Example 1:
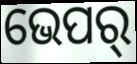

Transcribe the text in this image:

ଭେପର୍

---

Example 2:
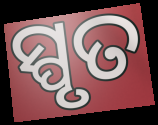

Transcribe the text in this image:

ସ୍ପୃତ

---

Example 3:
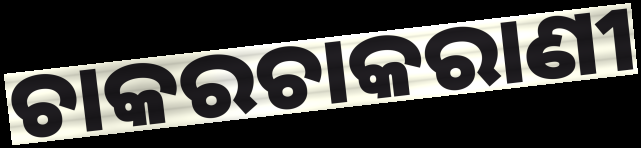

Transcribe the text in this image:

ଚାକରଚାକରାଣୀ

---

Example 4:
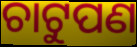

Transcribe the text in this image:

ଚାଟୁପଣ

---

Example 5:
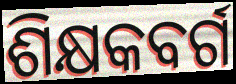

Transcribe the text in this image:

ଶିକ୍ଷକବର୍ଗ